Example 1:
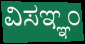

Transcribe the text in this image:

ವಿಸಞ್ಞಂ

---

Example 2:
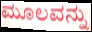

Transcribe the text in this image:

ಮೂಲವನ್ನು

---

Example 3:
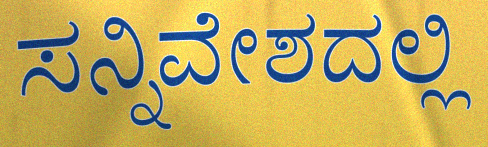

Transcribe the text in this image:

ಸನ್ನಿವೇಶದಲ್ಲಿ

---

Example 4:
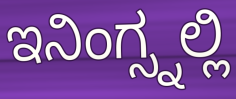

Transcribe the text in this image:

ಇನಿಂಗ್ಸ್ನಲ್ಲಿ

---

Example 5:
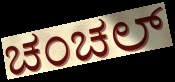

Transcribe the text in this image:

ಚಂಚಲ್